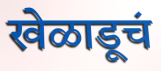
खेळाडूचं